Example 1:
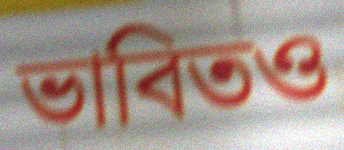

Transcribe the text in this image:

ভাবিতও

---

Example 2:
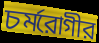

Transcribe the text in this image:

চর্মরোগীর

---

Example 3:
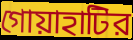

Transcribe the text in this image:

গোয়াহাটির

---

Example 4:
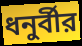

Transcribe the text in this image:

ধনুর্বীর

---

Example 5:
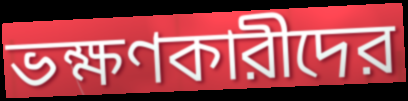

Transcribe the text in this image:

ভক্ষণকারীদের